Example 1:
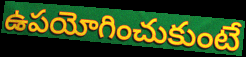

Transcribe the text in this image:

ఉపయోగించుకుంటే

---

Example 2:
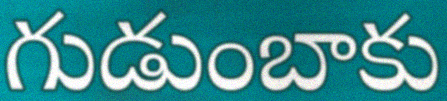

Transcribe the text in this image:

గుడుంబాకు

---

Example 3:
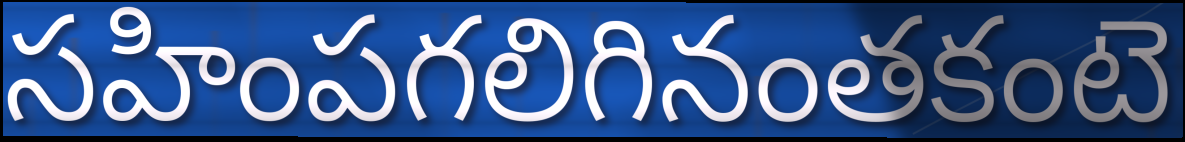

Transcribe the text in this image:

సహింపగలిగినంతకంటె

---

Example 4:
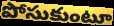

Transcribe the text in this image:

పోసుకుంటూ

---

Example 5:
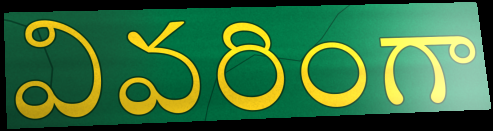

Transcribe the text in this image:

వివరింగా